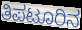
ತಿಪಟೂರಿನ